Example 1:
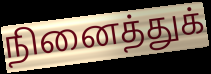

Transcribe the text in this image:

நினைத்துக்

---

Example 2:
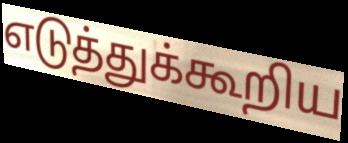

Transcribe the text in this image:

எடுத்துக்கூறிய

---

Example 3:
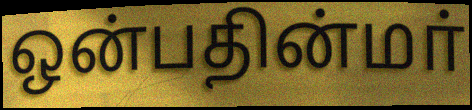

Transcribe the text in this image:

ஒன்பதின்மர்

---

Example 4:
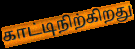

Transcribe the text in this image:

காட்டிநிற்கிறது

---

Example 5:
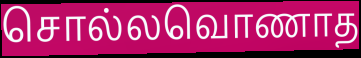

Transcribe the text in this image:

சொல்லவொணாத